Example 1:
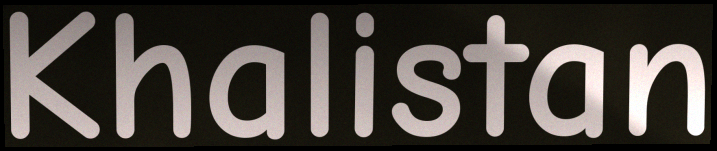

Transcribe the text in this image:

Khalistan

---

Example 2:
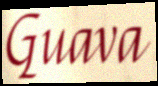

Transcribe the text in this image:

Guava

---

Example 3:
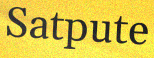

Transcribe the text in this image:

Satpute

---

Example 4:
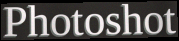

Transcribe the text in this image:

Photoshot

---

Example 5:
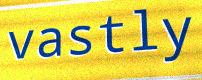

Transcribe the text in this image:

vastly